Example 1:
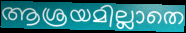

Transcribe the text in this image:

ആശ്രയമില്ലാതെ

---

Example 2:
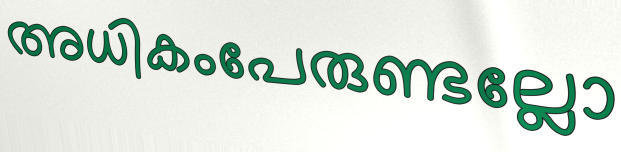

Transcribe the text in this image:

അധികംപേരുണ്ടല്ലോ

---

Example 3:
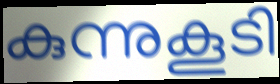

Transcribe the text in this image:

കുന്നുകൂടി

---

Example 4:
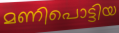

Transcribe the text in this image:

മണിപൊട്ടിയ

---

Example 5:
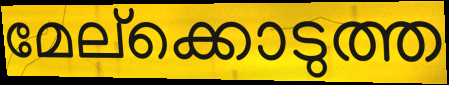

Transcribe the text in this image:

മേല്ക്കൊടുത്ത